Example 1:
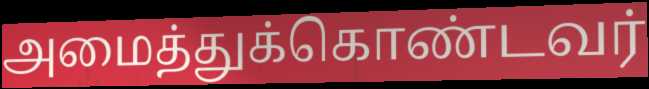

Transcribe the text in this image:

அமைத்துக்கொண்டவர்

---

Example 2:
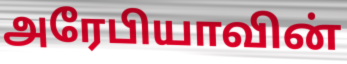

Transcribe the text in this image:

அரேபியாவின்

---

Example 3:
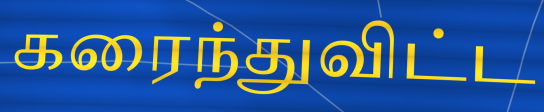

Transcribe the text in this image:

கரைந்துவிட்ட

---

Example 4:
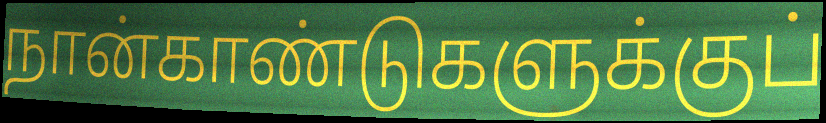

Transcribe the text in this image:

நான்காண்டுகளுக்குப்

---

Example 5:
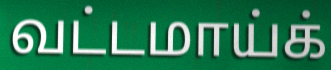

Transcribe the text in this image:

வட்டமாய்க்